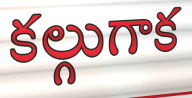
కల్గుగాక